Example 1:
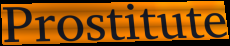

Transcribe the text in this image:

Prostitute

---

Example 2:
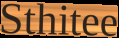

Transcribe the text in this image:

Sthitee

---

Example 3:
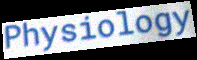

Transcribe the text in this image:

Physiology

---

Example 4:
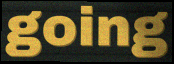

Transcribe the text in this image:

going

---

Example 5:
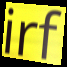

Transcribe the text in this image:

irf